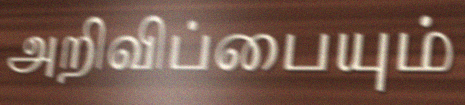
அறிவிப்பையும்